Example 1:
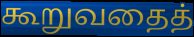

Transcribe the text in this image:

கூறுவதைத்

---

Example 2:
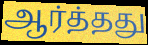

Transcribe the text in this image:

ஆர்த்தது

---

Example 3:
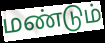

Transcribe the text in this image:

மண்டும்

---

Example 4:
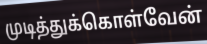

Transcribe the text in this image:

முடித்துக்கொள்வேன்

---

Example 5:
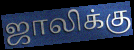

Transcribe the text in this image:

ஜாலிக்கு